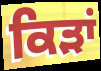
ਕਿੜਾਂ